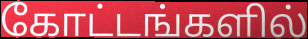
கோட்டங்களில்